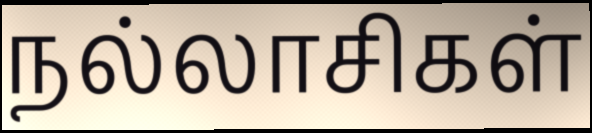
நல்லாசிகள்